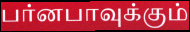
பர்னபாவுக்கும்